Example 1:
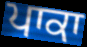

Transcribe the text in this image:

ਪਾਕਾ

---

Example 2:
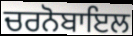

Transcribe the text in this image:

ਚਰਨੋਬਾਇਲ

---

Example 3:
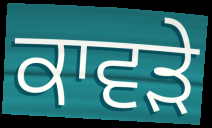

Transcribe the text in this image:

ਕਾਵੜੇ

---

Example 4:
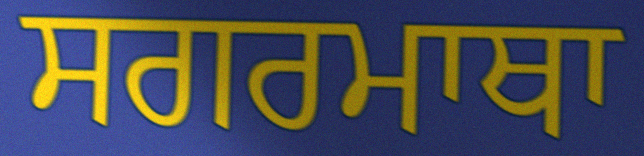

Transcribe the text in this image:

ਸਗਰਮਾਥਾ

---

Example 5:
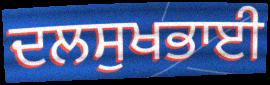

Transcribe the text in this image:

ਦਲਸੁਖਭਾਈ